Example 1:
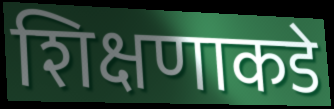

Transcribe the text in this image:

शिक्षणाकडे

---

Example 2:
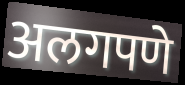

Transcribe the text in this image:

अलगपणे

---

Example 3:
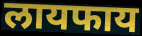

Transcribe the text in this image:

लायफाय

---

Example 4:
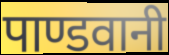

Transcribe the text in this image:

पाण्डवानी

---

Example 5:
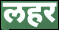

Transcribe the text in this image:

लहर